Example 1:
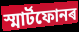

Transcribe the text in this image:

স্মাৰ্টফোনৰ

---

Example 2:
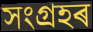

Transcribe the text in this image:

সংগ্ৰহৰ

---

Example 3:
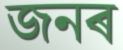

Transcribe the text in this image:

জনৰ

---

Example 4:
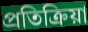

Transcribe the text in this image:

প্ৰতিক্ৰিয়া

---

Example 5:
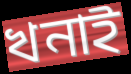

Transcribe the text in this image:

খনাই